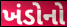
ખંડોનો